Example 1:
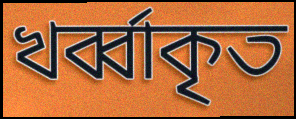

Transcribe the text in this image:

খর্ব্বাকৃত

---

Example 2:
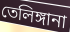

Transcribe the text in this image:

তেলিঙ্গানা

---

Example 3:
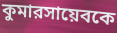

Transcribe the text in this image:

কুমারসায়েবকে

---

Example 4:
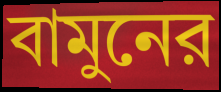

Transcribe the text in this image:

বামুনের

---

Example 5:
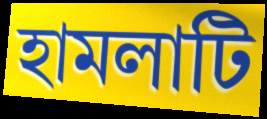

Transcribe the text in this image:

হামলাটি